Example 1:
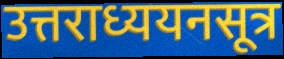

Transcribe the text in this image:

उत्तराध्ययनसूत्र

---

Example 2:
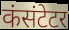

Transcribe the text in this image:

कंसंटेटर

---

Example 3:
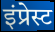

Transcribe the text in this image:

इंप्रेस्ट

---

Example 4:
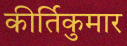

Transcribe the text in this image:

कीर्तिकुमार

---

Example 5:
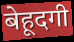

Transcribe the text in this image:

बेहूदगी